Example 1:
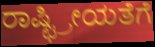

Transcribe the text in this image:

ರಾಷ್ಟ್ರೀಯತೆಗೆ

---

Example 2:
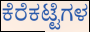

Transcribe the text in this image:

ಕೆರೆಕಟ್ಟೆಗಳ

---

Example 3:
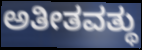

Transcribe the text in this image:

ಅತೀತವತ್ಥು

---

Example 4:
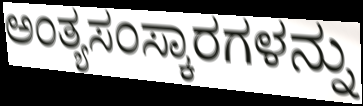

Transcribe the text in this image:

ಅಂತ್ಯಸಂಸ್ಕಾರಗಳನ್ನು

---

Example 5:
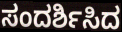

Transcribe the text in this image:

ಸಂದರ್ಶಿಸಿದ